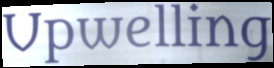
Upwelling